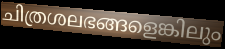
ചിത്രശലഭങ്ങളെങ്കിലും